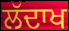
ਲੱਦਾਖ